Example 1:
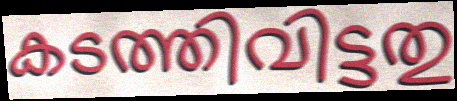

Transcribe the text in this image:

കടത്തിവിട്ടതു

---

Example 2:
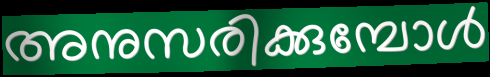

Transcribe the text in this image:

അനുസരിക്കുമ്പോൾ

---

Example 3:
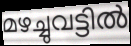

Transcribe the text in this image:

മഴച്ചുവട്ടിൽ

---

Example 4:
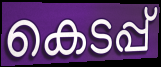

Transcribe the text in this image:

കെടപ്പ്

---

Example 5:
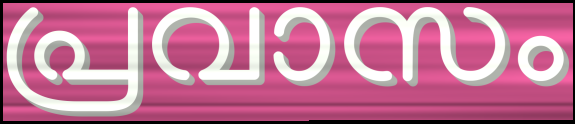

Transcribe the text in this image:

പ്രവാസം